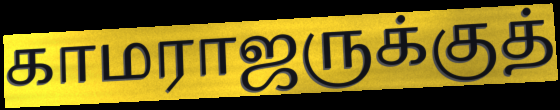
காமராஜருக்குத்